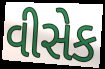
વીસેક